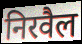
निरवैल